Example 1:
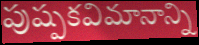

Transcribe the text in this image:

పుష్పకవిమానాన్ని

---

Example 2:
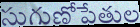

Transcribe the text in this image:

సుగుణోపేతుల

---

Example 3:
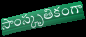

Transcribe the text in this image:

సాంస్కృతికంగా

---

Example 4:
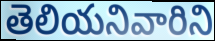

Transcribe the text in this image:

తెలియనివారిని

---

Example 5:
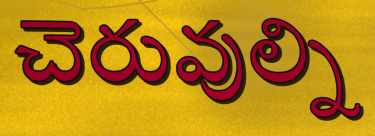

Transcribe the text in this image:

చెరువుల్ని